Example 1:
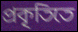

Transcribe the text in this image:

প্রকৃতিতে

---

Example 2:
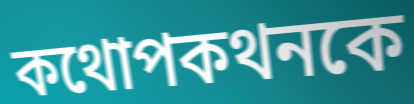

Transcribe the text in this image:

কথোপকথনকে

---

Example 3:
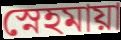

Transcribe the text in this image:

স্নেহমায়া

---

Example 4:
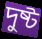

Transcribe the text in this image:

দুষ্ট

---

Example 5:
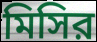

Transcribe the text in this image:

মিসির